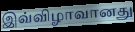
இவ்விழாவானது